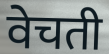
वेचती